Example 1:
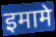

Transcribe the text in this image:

इमामे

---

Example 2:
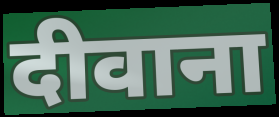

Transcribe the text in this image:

दीवाना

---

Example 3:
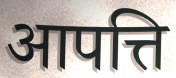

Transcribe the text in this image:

आपत्ति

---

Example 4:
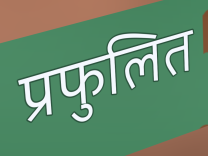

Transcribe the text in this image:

प्रफुलित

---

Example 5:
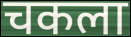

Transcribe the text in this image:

चकला